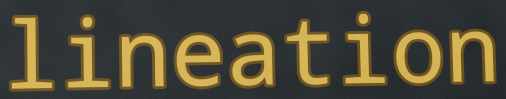
lineation